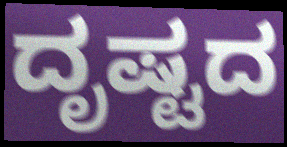
ದೃಷ್ಟದ